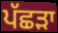
ਪੱਛੜਾ